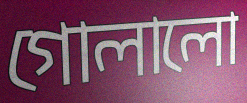
গোলালো